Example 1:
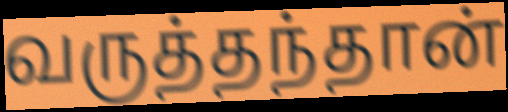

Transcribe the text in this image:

வருத்தந்தான்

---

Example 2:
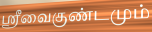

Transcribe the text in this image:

ஸ்ரீவைகுண்டமும்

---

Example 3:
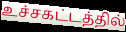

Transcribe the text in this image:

உச்சகட்டத்தில்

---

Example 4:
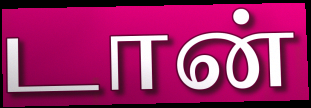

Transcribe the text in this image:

டான்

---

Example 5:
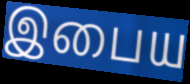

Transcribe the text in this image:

இபைய